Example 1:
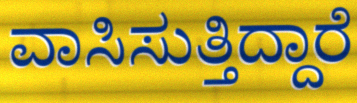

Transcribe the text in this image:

ವಾಸಿಸುತ್ತಿದ್ದಾರೆ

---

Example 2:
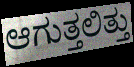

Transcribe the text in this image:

ಆಗುತ್ತಲಿತ್ತು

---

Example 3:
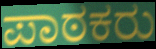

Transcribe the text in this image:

ಪಾಠಕರು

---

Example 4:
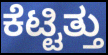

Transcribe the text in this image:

ಕೆಟ್ಟಿತ್ತು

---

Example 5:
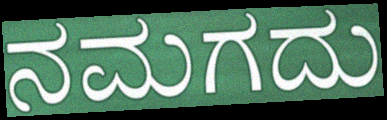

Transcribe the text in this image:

ನಮಗದು